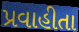
પ્રવાહીતા